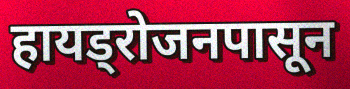
हायड्रोजनपासून